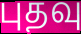
புதவு